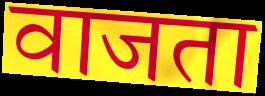
वाजता